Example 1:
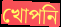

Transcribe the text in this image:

খোপনি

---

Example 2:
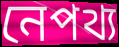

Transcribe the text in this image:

নেপথ্য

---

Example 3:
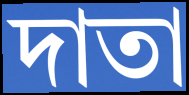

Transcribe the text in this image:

দাতা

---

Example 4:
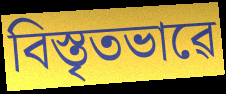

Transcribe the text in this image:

বিস্তৃতভাৱে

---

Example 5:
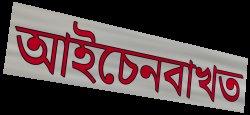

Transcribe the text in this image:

আইচেনবাখত